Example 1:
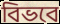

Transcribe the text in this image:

বিভবে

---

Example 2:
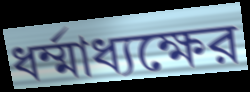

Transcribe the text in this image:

ধর্ম্মাধ্যক্ষের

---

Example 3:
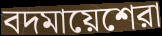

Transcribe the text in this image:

বদমায়েশেরা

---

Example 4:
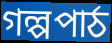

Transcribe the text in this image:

গল্পপাঠ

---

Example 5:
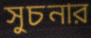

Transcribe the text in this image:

সুচনার